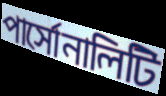
পার্সোনালিটি